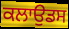
ਕਲਾਉਡਸ